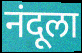
नंदूला